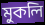
মুকলি